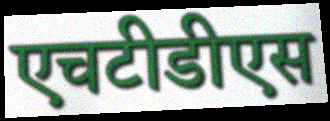
एचटीडीएस